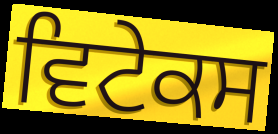
ਵਿਟੇਕਸ